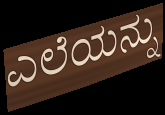
ಎಲೆಯನ್ನು